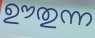
ഊതുന്ന